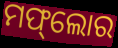
ମଫ୍‌ଲୋର